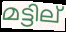
മട്ടില്